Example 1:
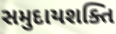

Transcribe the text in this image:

સમુદાયશક્તિ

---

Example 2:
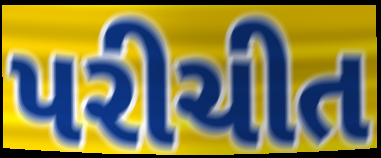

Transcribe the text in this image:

પરીચીત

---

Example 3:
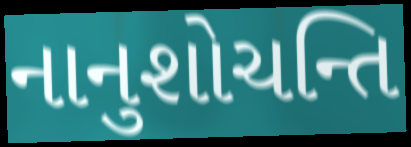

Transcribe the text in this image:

નાનુશોચન્તિ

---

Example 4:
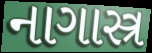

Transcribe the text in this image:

નાગાસ્ત્ર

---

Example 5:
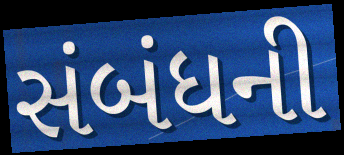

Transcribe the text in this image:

સંબંધની